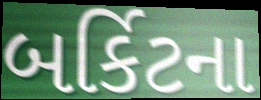
બર્કિટના